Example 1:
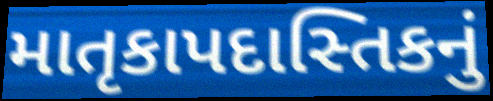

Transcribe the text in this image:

માતૃકાપદાસ્તિકનું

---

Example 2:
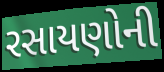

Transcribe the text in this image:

રસાયણોની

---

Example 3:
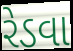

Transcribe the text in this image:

રેડવા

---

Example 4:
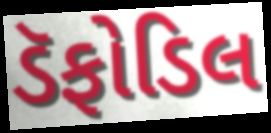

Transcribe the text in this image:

ડૅફોડિલ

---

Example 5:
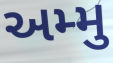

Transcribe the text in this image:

અમ્મુ